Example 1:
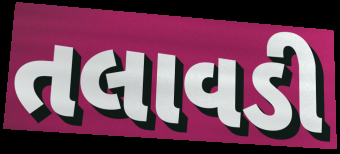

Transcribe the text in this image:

તલાવડી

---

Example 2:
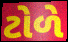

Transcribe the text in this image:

ટોળે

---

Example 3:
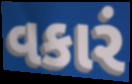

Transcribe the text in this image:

વકારં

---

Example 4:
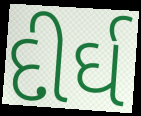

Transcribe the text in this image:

દીર્ઘ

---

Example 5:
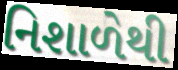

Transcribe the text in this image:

નિશાળેથી